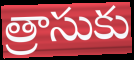
త్రాసుకు